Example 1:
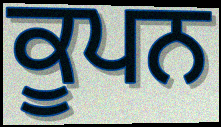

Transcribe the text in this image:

ਕੂਪਨ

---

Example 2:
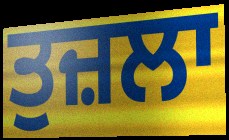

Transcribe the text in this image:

ਤੁਜ਼ਲਾ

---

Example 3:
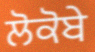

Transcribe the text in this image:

ਲੋਕੋਬੇ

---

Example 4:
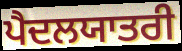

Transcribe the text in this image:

ਪੈਦਲਯਾਤਰੀ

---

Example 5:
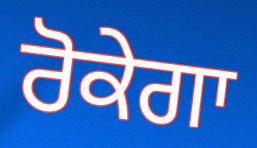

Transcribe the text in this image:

ਰੋਕੇਗਾ